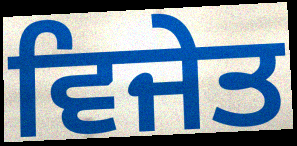
ਵਿਜੇਤ